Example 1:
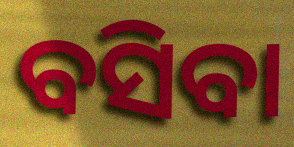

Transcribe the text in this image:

ବସିବା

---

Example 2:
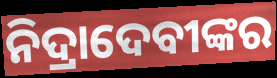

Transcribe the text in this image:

ନିଦ୍ରାଦେବୀଙ୍କର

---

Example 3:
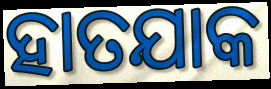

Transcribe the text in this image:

ହାତଯାକ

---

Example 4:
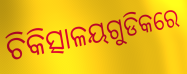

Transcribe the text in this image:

ଚିକିତ୍ସାଳୟଗୁଡିକରେ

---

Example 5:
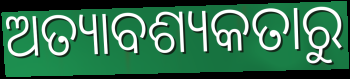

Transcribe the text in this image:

ଅତ୍ୟାବଶ୍ୟକତାରୁ